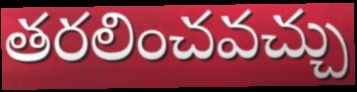
తరలించవచ్చు